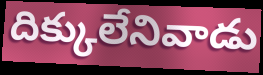
దిక్కులేనివాడు